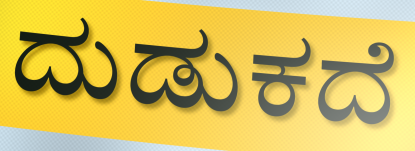
ದುಡುಕದೆ